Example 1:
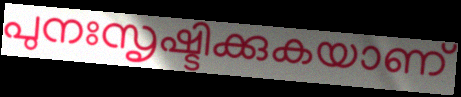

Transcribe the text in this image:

പുനഃസൃഷ്ടിക്കുകയാണ്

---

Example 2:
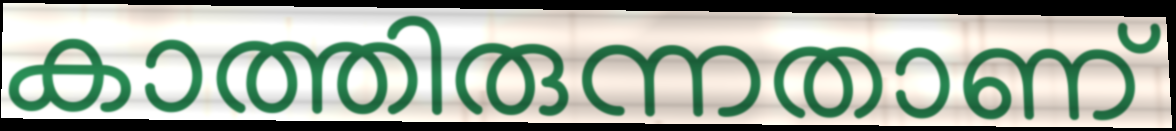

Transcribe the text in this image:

കാത്തിരുന്നതാണ്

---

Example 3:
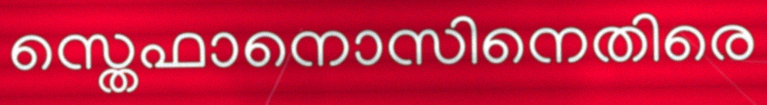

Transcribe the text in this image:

സ്തെഫാനൊസിനെതിരെ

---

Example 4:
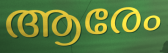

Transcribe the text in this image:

ആരേം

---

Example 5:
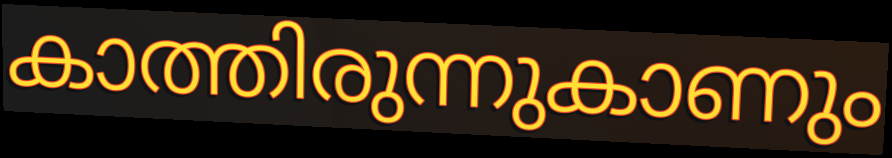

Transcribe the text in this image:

കാത്തിരുന്നുകാണും